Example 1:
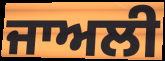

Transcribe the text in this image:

ਜਾਅਲੀ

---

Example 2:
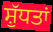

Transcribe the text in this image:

ਸ਼ੁੱਧਤਾਂ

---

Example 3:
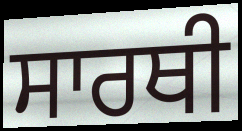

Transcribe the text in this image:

ਸਾਰਥੀ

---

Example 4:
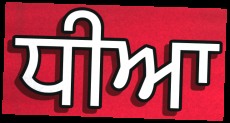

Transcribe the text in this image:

ਧੀਆ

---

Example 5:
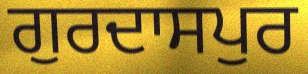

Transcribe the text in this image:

ਗੁਰਦਾਸਪੁਰ